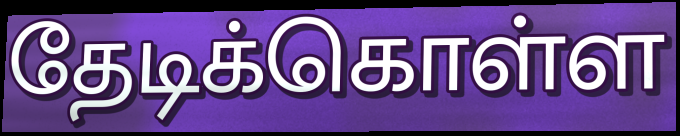
தேடிக்கொள்ள